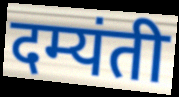
दम्यंती